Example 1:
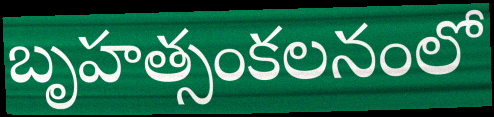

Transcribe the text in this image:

బృహత్సంకలనంలో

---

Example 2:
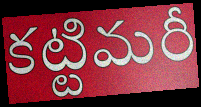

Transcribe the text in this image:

కట్టిమరీ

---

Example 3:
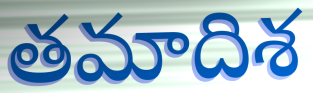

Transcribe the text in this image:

తమాదిశ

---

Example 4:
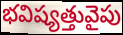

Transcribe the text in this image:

భవిష్యత్తువైపు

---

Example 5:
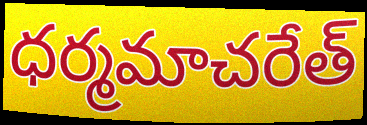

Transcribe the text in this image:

ధర్మమాచరేత్